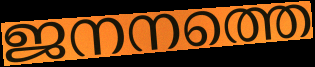
ജനനത്തെ